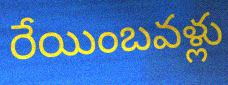
రేయింబవళ్లు